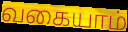
வகையாம்